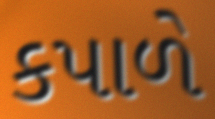
કપાળે